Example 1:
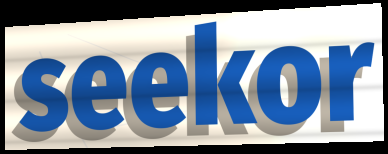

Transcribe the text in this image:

seekor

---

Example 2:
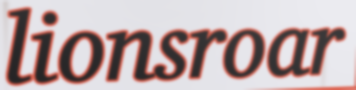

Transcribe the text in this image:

lionsroar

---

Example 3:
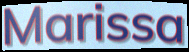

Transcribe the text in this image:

Marissa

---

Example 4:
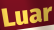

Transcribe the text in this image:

Luar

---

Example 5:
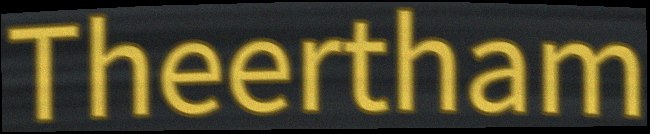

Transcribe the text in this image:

Theertham